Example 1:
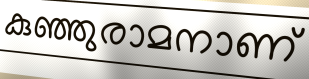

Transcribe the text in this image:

കുഞ്ഞുരാമനാണ്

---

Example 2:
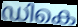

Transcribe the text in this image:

ഡികെ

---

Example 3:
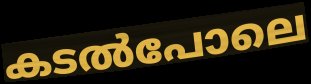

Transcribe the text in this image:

കടൽപോലെ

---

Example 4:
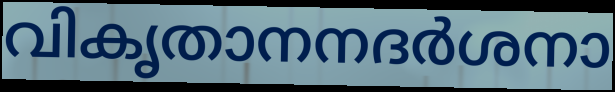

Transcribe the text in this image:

വികൃതാനനദർശനാ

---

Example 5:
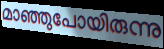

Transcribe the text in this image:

മാഞ്ഞുപോയിരുന്നു